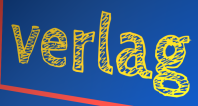
verlag